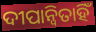
ଦୀପାନ୍ୱିତାହିଁ